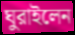
ঘুরাইলেন